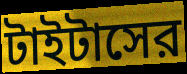
টাইটাসের